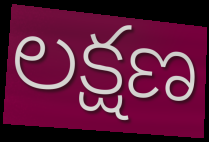
లక్షణ